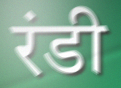
रंडी